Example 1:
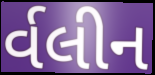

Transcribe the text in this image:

ર્વલીન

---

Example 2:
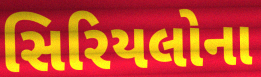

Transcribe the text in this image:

સિરિયલોના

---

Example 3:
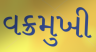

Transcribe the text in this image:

વક્રમુખી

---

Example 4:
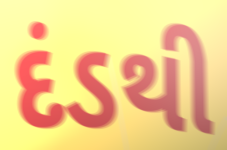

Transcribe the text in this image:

દંડથી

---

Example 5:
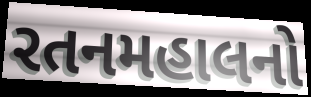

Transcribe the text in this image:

રતનમહાલનો